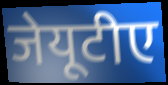
जेयूटीए